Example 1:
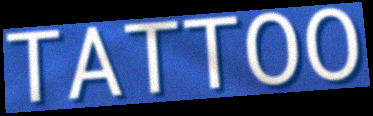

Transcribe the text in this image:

TATTOO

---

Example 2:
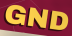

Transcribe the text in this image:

GND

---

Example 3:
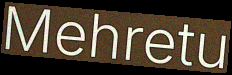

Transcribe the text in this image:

Mehretu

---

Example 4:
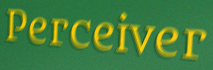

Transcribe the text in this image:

Perceiver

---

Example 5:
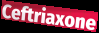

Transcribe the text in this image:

Ceftriaxone